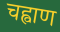
चह्वाण